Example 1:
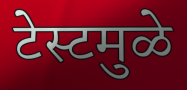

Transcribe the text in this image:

टेस्टमुळे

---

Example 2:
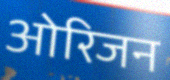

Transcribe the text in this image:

ओरिजन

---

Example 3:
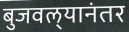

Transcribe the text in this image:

बुजवल्यानंतर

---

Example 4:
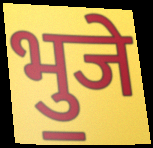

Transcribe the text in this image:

भु॒जे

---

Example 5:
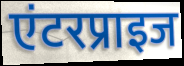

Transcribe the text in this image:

एंटरप्राइज